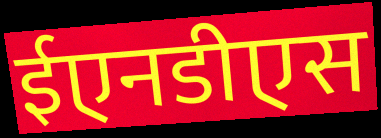
ईएनडीएस